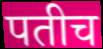
पतीच